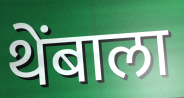
थेंबाला